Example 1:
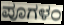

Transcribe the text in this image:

ಪೂಗಳಂ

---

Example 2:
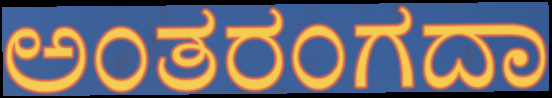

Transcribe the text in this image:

ಅಂತರಂಗದಾ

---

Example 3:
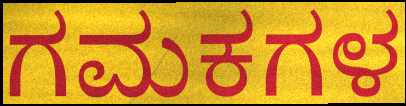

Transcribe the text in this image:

ಗಮಕಗಳ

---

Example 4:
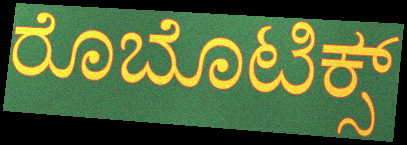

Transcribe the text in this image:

ರೊಬೊಟಿಕ್ಸ್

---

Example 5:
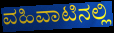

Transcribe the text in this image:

ವಹಿವಾಟಿನಲ್ಲಿ